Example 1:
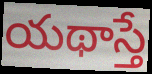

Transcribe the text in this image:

యథాస్తే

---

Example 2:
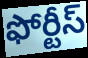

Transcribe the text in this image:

ఫోర్టీస్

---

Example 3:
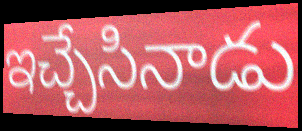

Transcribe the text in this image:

ఇచ్చేసినాడు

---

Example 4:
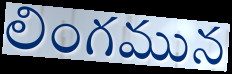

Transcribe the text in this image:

లింగమున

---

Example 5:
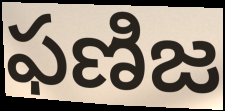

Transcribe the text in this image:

ఫణిజ